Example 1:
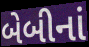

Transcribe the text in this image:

બેબીનાં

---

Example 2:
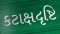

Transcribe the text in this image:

કટાક્ષદૃષ્ટિ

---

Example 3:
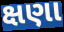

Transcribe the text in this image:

ક્ષણા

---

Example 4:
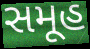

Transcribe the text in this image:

સમૂહ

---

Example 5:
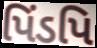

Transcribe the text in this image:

પિંડપિ